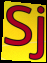
Sj